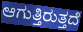
ಆಗುತ್ತಿರುತ್ತದೆ